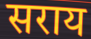
सराय